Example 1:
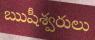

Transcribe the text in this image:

ఋషీశ్వరులు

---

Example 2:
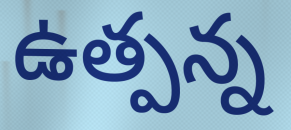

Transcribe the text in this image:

ఉత్పన్న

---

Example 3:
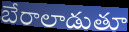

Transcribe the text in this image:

బేరాలాడుతూ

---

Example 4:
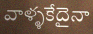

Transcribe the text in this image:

వాళ్ళకేదైనా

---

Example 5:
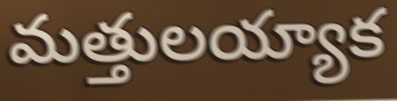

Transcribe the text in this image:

మత్తులయ్యాక